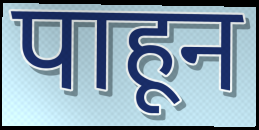
पाहून